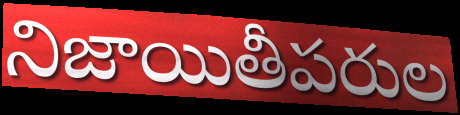
నిజాయితీపరుల